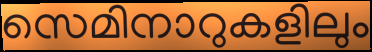
സെമിനാറുകളിലും